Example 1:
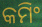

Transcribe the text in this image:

କମିଂ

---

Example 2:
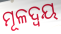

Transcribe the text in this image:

ମୂଳଦ୍ଵୟ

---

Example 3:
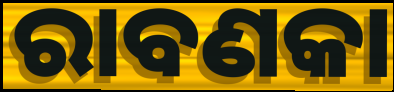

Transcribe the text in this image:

ରାବଣକା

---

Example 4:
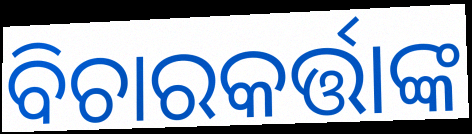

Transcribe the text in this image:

ବିଚାରକର୍ତ୍ତାଙ୍କ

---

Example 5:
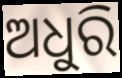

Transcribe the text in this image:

ଅଧୁରି